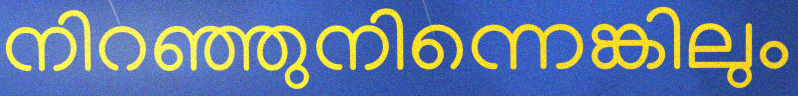
നിറഞ്ഞുനിന്നെങ്കിലും